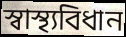
স্বাস্থ্যবিধান